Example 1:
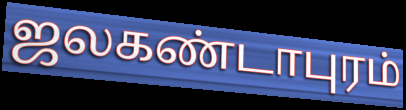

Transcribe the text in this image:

ஜலகண்டாபுரம்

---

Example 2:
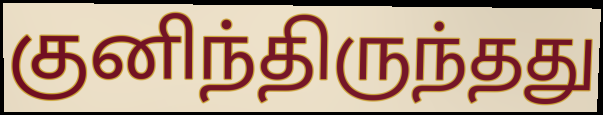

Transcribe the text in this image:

குனிந்திருந்தது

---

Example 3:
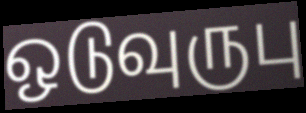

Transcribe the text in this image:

ஒடுவுருபு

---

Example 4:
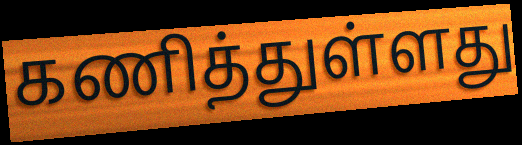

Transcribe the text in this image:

கணித்துள்ளது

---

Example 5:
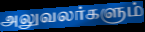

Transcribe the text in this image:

அலுவலர்களும்